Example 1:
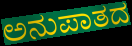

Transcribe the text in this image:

ಅನುಪಾತದ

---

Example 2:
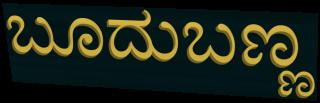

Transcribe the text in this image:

ಬೂದುಬಣ್ಣ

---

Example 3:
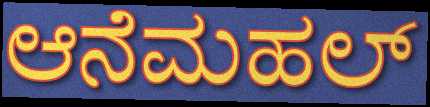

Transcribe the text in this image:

ಆನೆಮಹಲ್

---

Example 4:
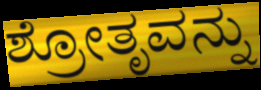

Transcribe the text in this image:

ಶ್ರೋತೃವನ್ನು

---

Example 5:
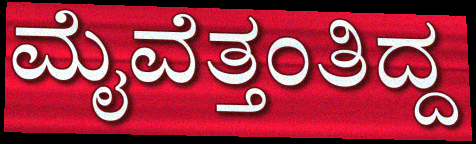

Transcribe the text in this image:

ಮೈವೆತ್ತಂತಿದ್ದ